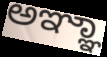
ಅಞ್ಞಾ